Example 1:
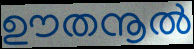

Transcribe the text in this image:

ഊതനൂൽ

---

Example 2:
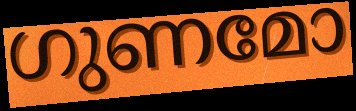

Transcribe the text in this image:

ഗുണമോ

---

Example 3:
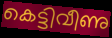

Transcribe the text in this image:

കെട്ടിവീണു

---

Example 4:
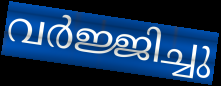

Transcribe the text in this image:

വർജ്ജിച്ചു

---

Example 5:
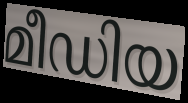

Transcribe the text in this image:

മീഡിയ